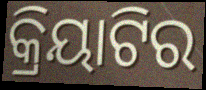
କ୍ରିୟାଟିର